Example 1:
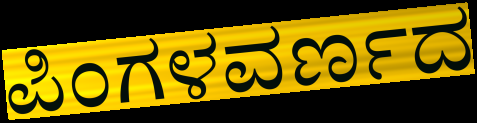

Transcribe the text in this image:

ಪಿಂಗಳವರ್ಣದ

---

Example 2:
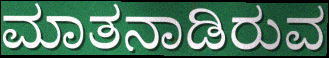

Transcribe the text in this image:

ಮಾತನಾಡಿರುವ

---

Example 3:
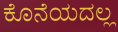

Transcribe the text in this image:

ಕೊನೆಯದಲ್ಲ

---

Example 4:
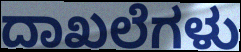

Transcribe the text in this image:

ದಾಖಲೆಗಳು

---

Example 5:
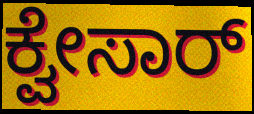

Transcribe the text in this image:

ಕ್ವೇಸಾರ್